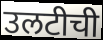
उलटीची